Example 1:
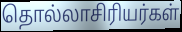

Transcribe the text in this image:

தொல்லாசிரியர்கள்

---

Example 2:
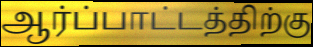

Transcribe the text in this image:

ஆர்ப்பாட்டத்திற்கு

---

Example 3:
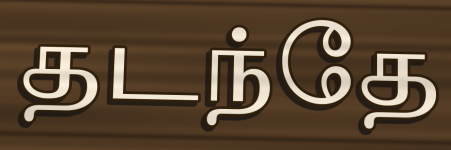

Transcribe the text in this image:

தடந்தே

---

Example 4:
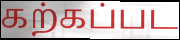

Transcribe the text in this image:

கற்கப்பட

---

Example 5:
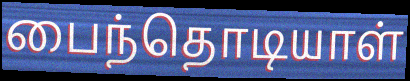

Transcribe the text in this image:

பைந்தொடியாள்